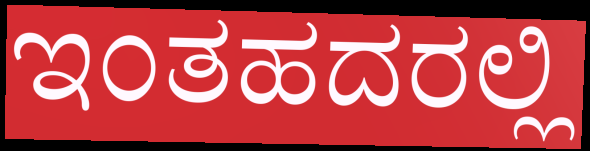
ಇಂತಹದರಲ್ಲಿ